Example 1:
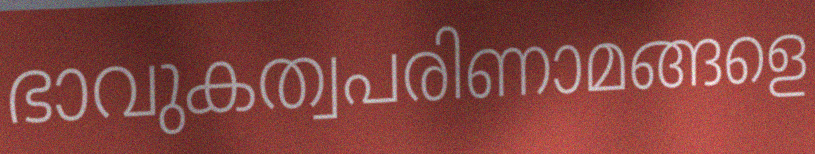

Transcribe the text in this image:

ഭാവുകത്വപരിണാമങ്ങളെ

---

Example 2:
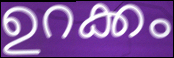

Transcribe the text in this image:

ഉറക്കം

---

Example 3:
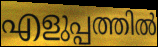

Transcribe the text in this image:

എളുപ്പത്തിൽ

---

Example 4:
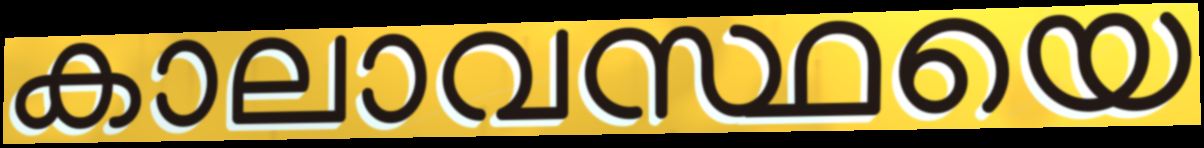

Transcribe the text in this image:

കാലാവസ്ഥയെ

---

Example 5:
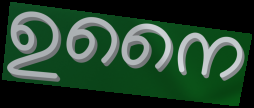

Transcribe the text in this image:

ഉനൈ